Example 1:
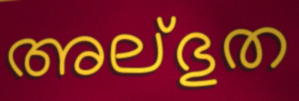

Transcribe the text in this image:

അല്ഭുത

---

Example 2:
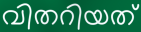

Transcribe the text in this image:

വിതറിയത്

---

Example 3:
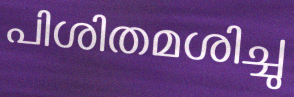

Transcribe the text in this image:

പിശിതമശിച്ചു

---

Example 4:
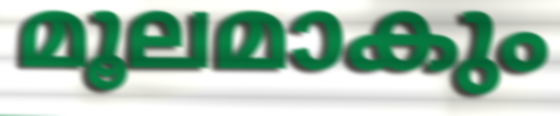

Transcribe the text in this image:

മൂലമാകും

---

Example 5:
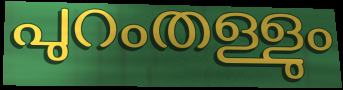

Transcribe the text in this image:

പുറംതള്ളും